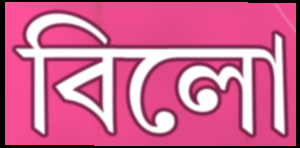
বিলো